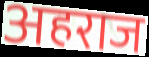
अहराज